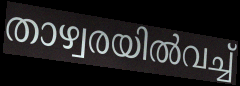
താഴ്വരയിൽവച്ച്